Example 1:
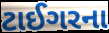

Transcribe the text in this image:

ટાઈગરના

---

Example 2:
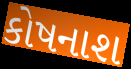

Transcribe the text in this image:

કોષનાશ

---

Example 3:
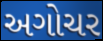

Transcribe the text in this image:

અગોચર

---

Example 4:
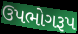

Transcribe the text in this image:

ઉપભોગરૂપ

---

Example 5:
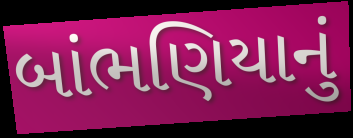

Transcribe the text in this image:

બાંભણિયાનું